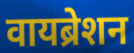
वायब्रेशन